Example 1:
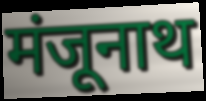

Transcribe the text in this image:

मंजूनाथ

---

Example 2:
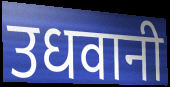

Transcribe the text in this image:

उधवानी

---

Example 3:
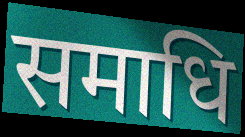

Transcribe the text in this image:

समाधि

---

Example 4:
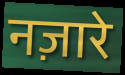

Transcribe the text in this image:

नज़ारे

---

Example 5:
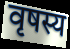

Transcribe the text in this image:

वृषस्य